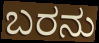
ಬರನು